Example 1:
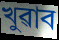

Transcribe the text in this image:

খুৱাব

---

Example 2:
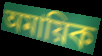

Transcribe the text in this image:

অমায়িক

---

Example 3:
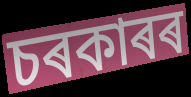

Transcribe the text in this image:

চৰকাৰৰ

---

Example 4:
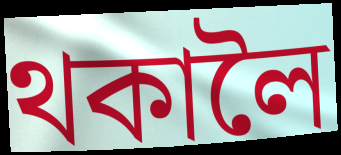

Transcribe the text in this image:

থকালৈ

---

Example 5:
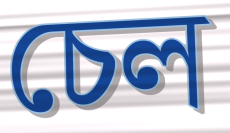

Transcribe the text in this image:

চেল